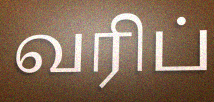
வரிப்